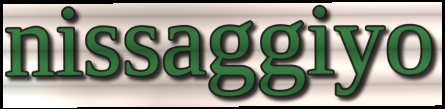
nissaggiyo